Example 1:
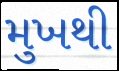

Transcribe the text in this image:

મુખથી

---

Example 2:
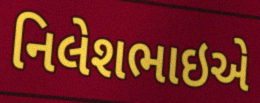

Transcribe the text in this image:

નિલેશભાઇએ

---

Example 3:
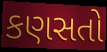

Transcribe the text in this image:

કણસતો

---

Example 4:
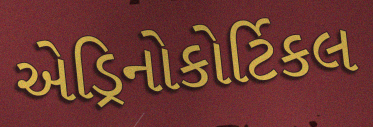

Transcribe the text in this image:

એડ્રિનોકોર્ટિકલ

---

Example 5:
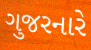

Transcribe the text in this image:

ગુજરનારે